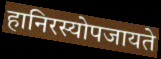
हानिरस्योपजायते